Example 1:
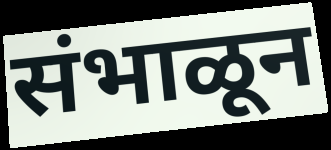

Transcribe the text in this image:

संभाळून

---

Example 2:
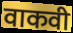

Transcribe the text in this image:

वाकवी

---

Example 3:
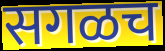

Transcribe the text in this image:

सगळच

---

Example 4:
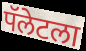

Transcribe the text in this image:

पॅलेटला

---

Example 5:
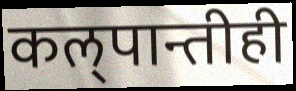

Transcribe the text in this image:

कल्पान्तीही